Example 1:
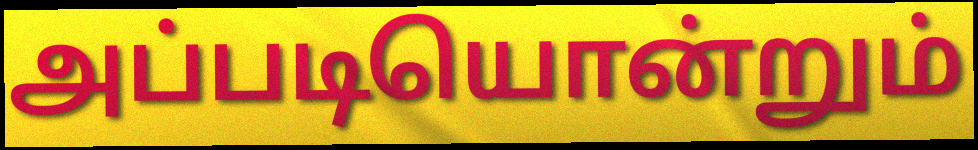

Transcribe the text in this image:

அப்படியொன்றும்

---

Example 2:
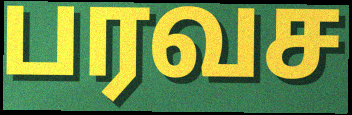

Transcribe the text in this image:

பரவச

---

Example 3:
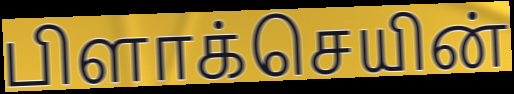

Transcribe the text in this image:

பிளாக்செயின்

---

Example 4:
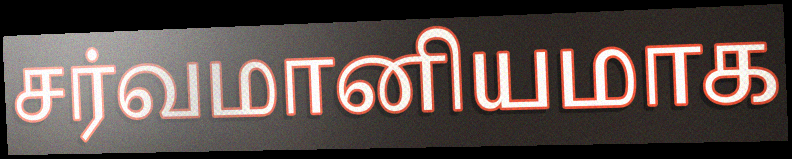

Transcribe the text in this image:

சர்வமானியமாக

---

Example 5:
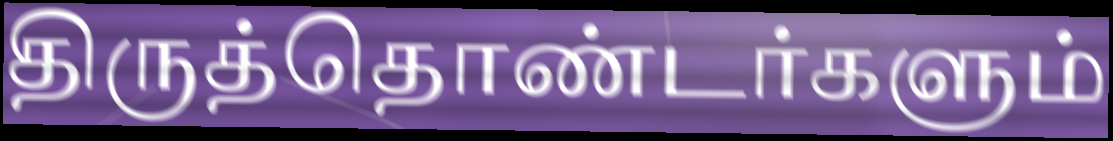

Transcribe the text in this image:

திருத்தொண்டர்களும்